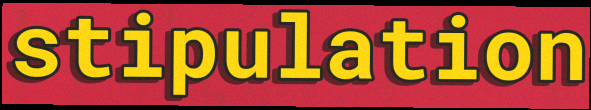
stipulation